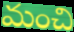
మంచి